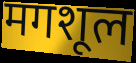
मगशूल